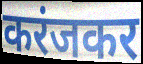
करंजकर